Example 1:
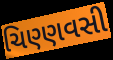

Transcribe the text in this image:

ચિણ્ણવસી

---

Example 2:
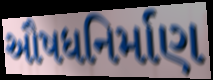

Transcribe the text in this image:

ઔષધનિર્માણ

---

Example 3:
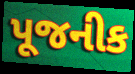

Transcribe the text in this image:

પૂજનીક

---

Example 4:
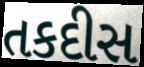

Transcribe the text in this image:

તકદીસ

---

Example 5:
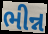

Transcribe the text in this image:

ભીન્ન